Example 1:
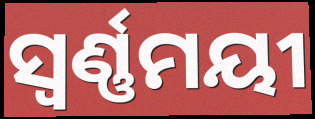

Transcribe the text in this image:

ସ୍ୱର୍ଣ୍ଣମୟୀ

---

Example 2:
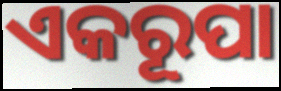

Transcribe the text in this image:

ଏକରୂପା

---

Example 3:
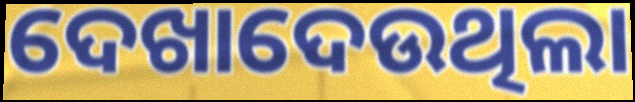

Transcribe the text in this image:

ଦେଖାଦେଉଥିଲା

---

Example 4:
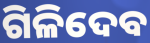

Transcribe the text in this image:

ଗିଳିଦେବ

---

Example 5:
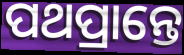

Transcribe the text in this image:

ପଥପ୍ରାନ୍ତେ